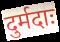
दुर्मदाः